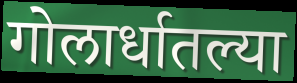
गोलार्धातल्या